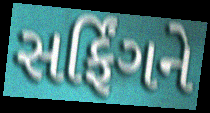
સર્ફિંગને